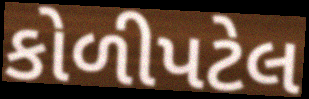
કોળીપટેલ